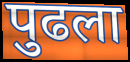
पुढला